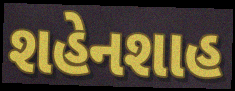
શહેનશાહ